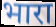
भारा